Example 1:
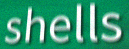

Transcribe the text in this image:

shells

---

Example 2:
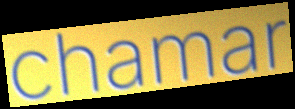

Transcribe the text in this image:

chamar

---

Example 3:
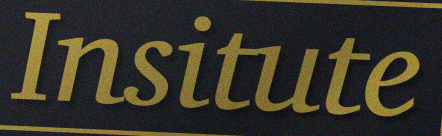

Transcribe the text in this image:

Insitute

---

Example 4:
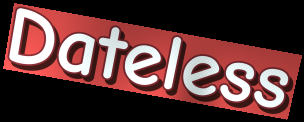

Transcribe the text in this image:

Dateless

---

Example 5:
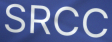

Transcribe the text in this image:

SRCC